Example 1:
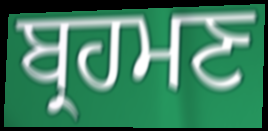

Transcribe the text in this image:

ਬ੍ਰਹਮਣ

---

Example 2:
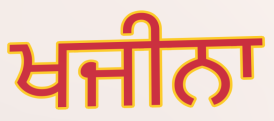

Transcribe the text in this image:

ਖਜੀਨਾ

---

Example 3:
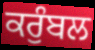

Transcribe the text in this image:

ਕਰੁੰਬਲ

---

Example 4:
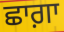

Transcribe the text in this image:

ਛਾਗ਼ਾ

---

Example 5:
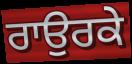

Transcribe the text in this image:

ਰਾਉਰਕੇ